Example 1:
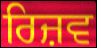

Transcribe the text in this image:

ਰਿਜ਼ਵ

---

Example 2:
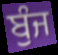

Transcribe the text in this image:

ਬੁੰਜ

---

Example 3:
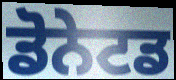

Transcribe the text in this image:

ਡੋਨੇਟਡ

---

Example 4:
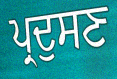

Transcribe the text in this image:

ਪ੍ਰਦੁਸਣ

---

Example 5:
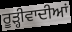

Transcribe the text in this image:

ਰੂੜ੍ਹੀਵਾਦੀਆਂ